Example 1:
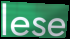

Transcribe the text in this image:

lese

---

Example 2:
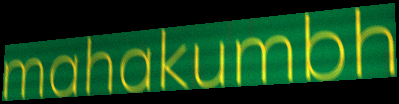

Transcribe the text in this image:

mahakumbh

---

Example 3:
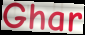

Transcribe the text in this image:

Ghar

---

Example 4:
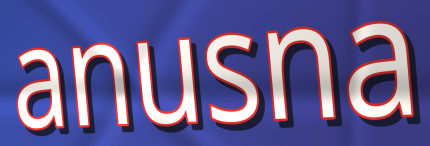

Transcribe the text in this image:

anusna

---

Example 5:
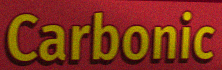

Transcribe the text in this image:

Carbonic